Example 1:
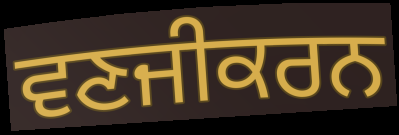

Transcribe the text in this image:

ਵਣਜੀਕਰਨ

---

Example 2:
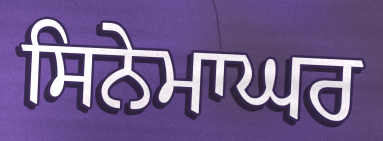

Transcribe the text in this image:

ਸਿਨੇਮਾਘਰ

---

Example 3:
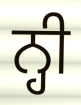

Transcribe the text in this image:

ਨ੍ਹੀ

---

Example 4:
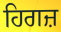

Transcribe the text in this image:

ਹਿਗਜ਼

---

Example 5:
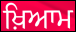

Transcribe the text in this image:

ਖ਼ਿਆਮ